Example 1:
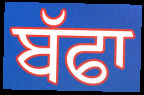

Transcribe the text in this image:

ਬੱਫਾ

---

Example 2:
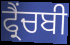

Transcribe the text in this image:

ਫ੍ਰੈਂਚਬੀ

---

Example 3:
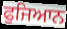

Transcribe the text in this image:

ਫੁਜਿਆਨ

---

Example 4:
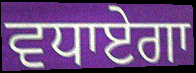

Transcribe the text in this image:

ਵਧਾਏਗਾ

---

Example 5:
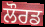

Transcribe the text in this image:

ਲੌਰਡ